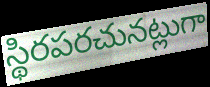
స్థిరపరచునట్లుగా